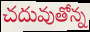
చదువుతోన్న